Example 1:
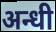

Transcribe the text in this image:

अन्धी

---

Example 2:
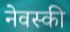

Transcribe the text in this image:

नेवस्की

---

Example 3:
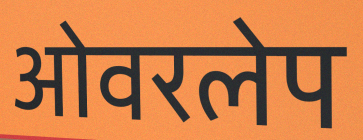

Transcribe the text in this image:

ओवरलेप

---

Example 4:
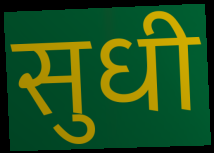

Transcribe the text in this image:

सुधी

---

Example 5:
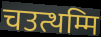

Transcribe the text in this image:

चउत्थम्मि